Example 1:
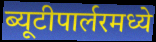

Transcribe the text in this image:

ब्यूटीपार्लरमध्ये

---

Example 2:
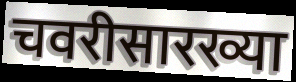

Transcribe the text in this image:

चवरीसारख्या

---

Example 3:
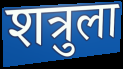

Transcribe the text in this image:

शत्रुला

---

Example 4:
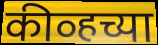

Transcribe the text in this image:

कीव्हच्या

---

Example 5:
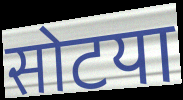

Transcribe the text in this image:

सोटया